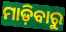
ମାଡ଼ିବାରୁ